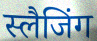
स्लैजिंग